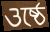
ওষ্ঠে